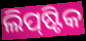
ଲିପ୍‌ଷ୍ଟିକ